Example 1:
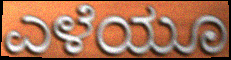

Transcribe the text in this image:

ಎಳೆಯೂ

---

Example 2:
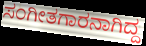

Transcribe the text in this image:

ಸಂಗೀತಗಾರನಾಗಿದ್ದ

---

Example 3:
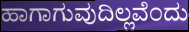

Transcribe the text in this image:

ಹಾಗಾಗುವುದಿಲ್ಲವೆಂದು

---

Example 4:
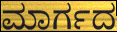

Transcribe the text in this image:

ಮಾರ್ಗದ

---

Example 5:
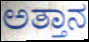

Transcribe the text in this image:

ಅತ್ತಾನ